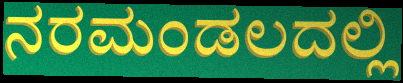
ನರಮಂಡಲದಲ್ಲಿ